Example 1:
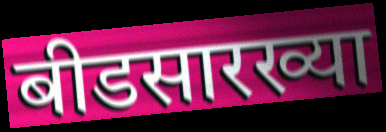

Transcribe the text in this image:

बीडसारख्या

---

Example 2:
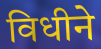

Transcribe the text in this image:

विधीने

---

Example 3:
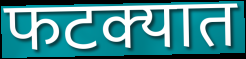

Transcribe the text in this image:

फटक्यात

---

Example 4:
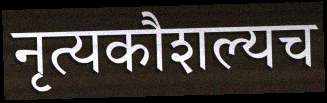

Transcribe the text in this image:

नृत्यकौशल्यच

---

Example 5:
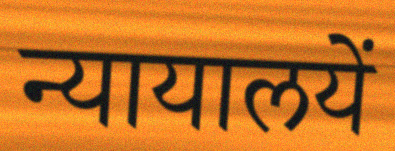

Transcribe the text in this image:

न्यायालयें